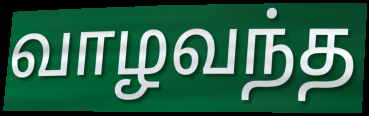
வாழவந்த